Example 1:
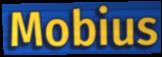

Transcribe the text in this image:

Mobius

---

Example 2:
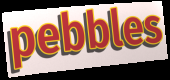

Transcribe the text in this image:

pebbles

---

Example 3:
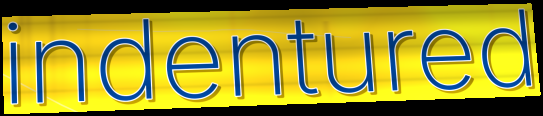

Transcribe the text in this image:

indentured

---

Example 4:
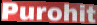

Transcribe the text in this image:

Purohit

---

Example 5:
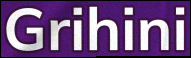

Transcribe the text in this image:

Grihini